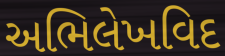
અભિલેખવિદ